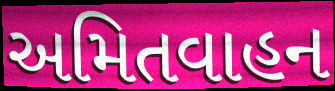
અમિતવાહન